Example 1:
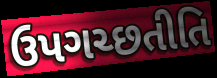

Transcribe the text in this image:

ઉપગચ્છતીતિ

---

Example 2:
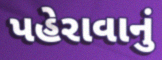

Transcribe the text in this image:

પહેરાવાનું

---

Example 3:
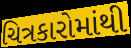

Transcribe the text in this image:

ચિત્રકારોમાંથી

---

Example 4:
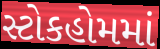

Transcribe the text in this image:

સ્ટોકહોમમાં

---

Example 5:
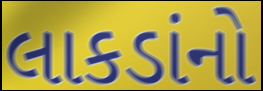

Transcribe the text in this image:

લાકડાંનો